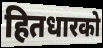
हितधारको